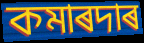
কমাৰদাৰ